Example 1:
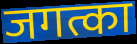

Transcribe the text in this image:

जगत्का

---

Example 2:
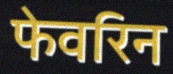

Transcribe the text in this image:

फेवरिन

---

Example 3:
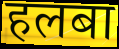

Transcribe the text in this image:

हलबा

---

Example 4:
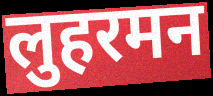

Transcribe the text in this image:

लुहरमन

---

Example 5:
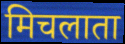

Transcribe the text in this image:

मिचलाता